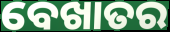
ବେଖାତର